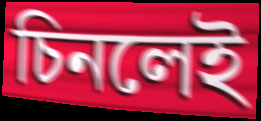
চিনলেই